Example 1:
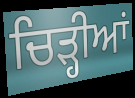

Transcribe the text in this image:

ਚਿੜ੍ਹੀਆਂ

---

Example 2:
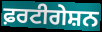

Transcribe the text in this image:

ਫ਼ਰਟੀਗੇਸ਼ਨ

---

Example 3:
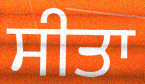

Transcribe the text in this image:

ਸੀਤਾ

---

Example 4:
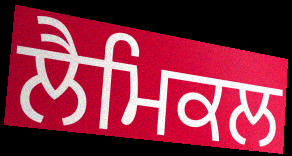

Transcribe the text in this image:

ਲੈਮਿਕਲ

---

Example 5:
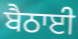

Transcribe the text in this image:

ਬੈਠਾਈ